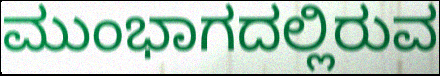
ಮುಂಭಾಗದಲ್ಲಿರುವ